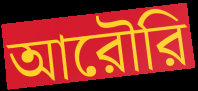
আরৌরি